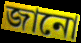
জানো